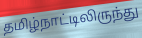
தமிழ்நாட்டிலிருந்து